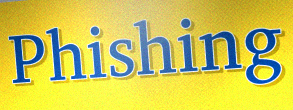
Phishing